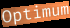
Optimum